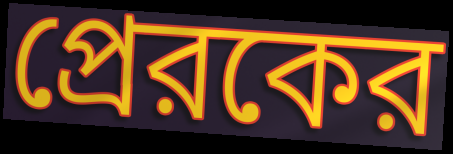
প্রেরকের